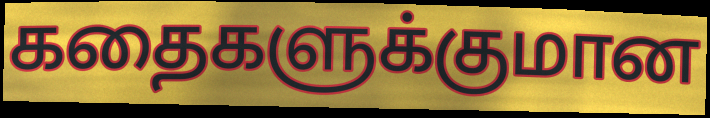
கதைகளுக்குமான